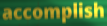
accomplish